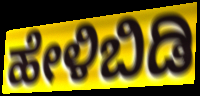
ಹೇಳಿಬಿಡಿ